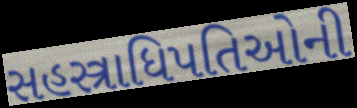
સહસ્ત્રાધિપતિઓની